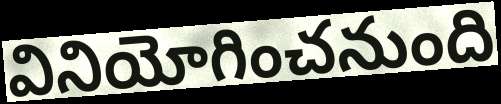
వినియోగించనుంది